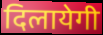
दिलायेगी